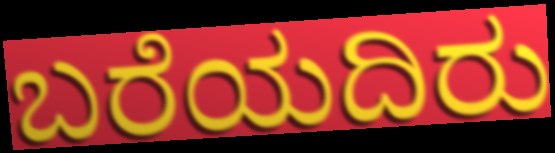
ಬರೆಯದಿರು